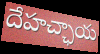
దేహచ్ఛాయ